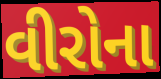
વીરોના